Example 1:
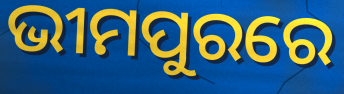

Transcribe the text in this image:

ଭୀମପୁରରେ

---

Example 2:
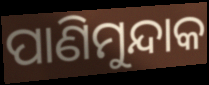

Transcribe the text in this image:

ପାଣିମୁନ୍ଦାକ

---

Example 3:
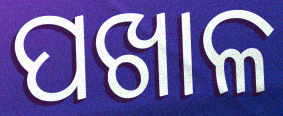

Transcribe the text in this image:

ପଖାଳ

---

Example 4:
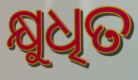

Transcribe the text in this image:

କ୍ଷୁଧିତ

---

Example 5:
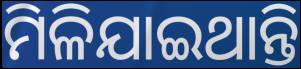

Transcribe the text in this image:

ମିଳିଯାଇଥାନ୍ତି